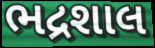
ભદ્રશાલ